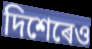
দিশেৰেও